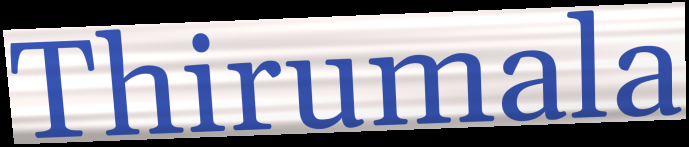
Thirumala